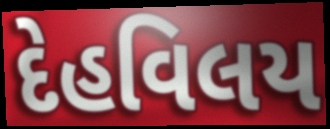
દેહવિલય